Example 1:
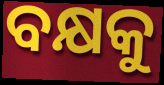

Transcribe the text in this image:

ବକ୍ଷକୁ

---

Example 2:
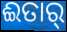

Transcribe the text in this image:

ଈତାର୍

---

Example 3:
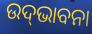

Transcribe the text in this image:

ଉଦ୍‍ଭାବନା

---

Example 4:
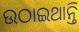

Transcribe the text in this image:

ଉଠାଇଥାନ୍ତି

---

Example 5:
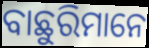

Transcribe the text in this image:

ବାଛୁରିମାନେ